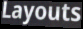
Layouts